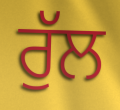
ਰੁੱਲ